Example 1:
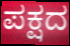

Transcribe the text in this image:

ಪಕ್ಷದ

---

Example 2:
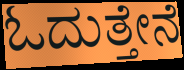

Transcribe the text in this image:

ಓದುತ್ತೇನೆ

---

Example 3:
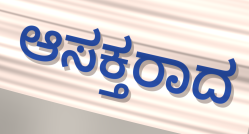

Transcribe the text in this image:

ಆಸಕ್ತರಾದ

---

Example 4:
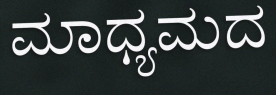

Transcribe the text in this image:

ಮಾಧ್ಯಮದ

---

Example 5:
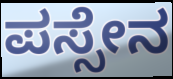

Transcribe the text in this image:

ಪಸ್ಸೇನ